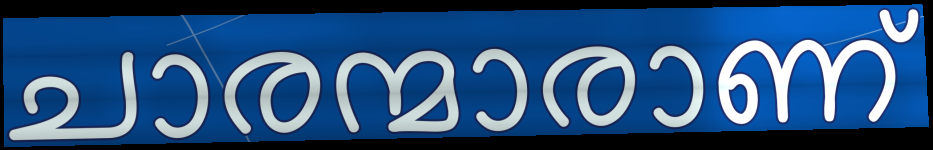
ചാരന്മാരാണ്